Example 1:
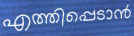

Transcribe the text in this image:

എത്തിപ്പെടാൻ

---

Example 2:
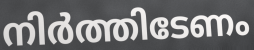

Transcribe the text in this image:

നിർത്തിടേണം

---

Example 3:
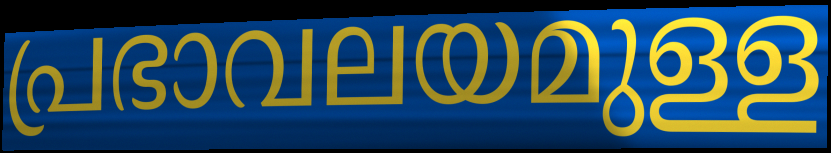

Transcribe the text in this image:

പ്രഭാവലയമുള്ള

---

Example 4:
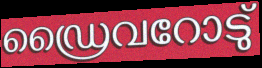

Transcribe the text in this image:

ഡ്രൈവറോടു്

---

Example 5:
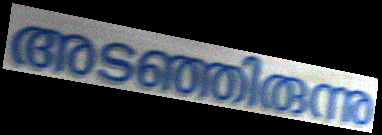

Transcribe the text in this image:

അടഞ്ഞിരുന്നു